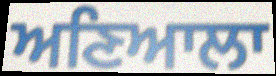
ਅਣਿਆਲਾ